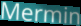
Mermin